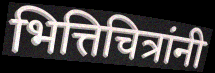
भित्तिचित्रांनी